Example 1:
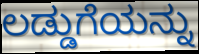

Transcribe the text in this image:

ಲಡ್ಡುಗೆಯನ್ನು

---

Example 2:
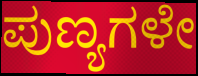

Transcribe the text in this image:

ಪುಣ್ಯಗಳೇ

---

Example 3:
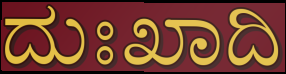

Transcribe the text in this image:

ದುಃಖಾದಿ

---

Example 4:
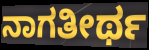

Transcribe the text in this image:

ನಾಗತೀರ್ಥ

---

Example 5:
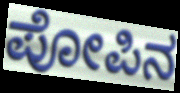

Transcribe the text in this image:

ಪೋಪಿನ